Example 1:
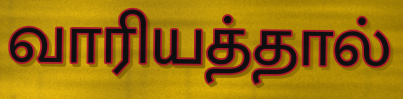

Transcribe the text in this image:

வாரியத்தால்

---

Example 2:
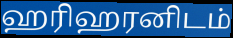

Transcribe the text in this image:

ஹரிஹரனிடம்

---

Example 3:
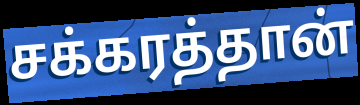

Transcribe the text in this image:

சக்கரத்தான்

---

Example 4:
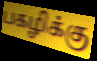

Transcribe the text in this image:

பகழிக்கு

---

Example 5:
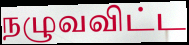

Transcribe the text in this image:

நழுவவிட்ட